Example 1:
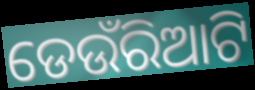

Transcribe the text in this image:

ଡେଉଁରିଆଟି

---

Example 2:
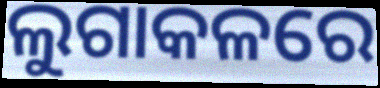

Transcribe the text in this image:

ଲୁଗାକଳରେ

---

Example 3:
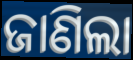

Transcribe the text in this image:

ଜାଣିଲା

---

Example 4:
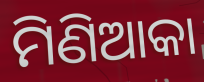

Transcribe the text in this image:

ମିଣିଆକା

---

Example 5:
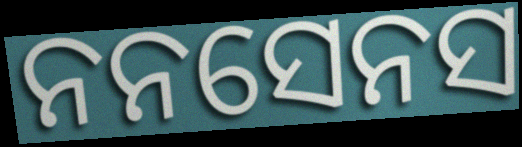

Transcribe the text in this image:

ନନସେନସ